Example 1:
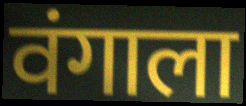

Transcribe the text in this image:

वंगाला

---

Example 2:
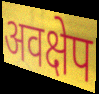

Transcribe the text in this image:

अवक्षेप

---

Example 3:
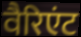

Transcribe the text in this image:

वैरिएंट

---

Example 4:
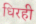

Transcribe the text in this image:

धिरही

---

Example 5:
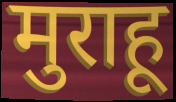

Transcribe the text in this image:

मुराहू